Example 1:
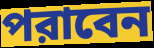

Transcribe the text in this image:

পরাবেন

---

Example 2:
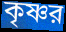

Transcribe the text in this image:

কৃষ্ণর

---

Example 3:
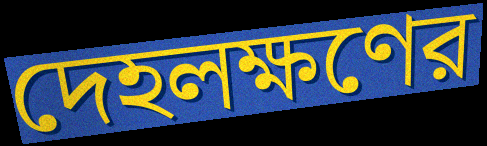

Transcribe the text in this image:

দেহলক্ষণের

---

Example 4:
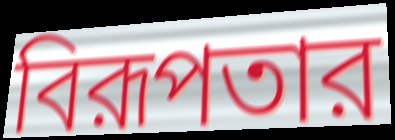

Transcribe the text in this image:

বিরূপতার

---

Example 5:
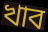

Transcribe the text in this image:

খাব